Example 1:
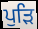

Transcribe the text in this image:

ਪੁੜਿ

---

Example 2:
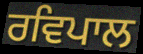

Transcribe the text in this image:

ਰਵਿਪਾਲ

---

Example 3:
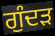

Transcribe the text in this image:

ਗੁੰਦੜ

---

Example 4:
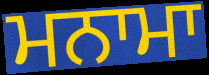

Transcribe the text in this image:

ਮਨਾਮਾ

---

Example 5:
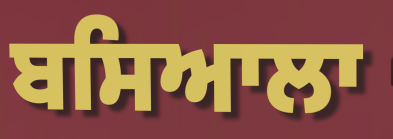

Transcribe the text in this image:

ਬਸਿਆਲਾ